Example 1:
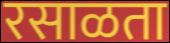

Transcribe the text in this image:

रसाळता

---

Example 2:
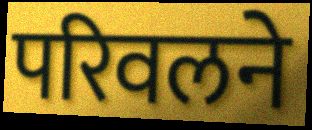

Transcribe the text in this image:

परिवलने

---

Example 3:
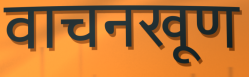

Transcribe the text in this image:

वाचनखूण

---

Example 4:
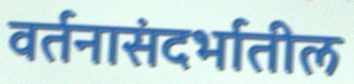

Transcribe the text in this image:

वर्तनासंदर्भातील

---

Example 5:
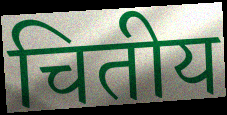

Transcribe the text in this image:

चितीय